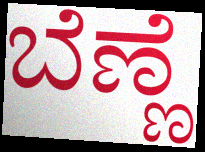
ಬೆಣ್ಣೆ